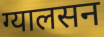
ग्यालसन